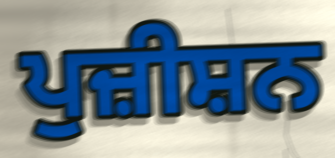
ਪੁਜ਼ੀਸ਼ਨ